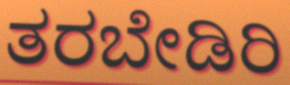
ತರಬೇಡಿರಿ